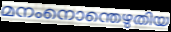
മനംനൊന്തെഴുതിയ